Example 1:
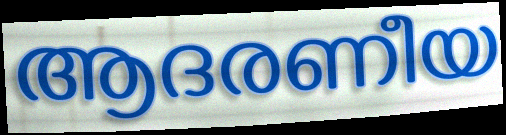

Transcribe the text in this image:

ആദരണീയ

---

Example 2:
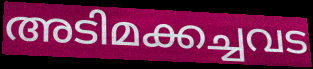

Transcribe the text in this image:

അടിമക്കച്ചവട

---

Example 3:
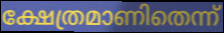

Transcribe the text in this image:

ക്ഷേത്രമാണിതെന്ന്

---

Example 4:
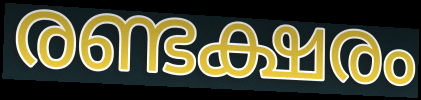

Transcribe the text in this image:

രണ്ടക്ഷരം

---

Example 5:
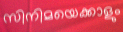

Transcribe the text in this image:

സിനിമയെക്കാളും